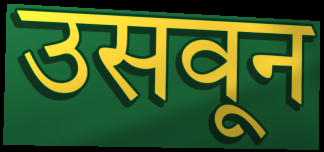
उसवून